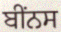
ਬੀਂਨਸ